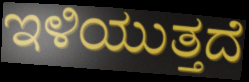
ಇಳಿಯುತ್ತದೆ